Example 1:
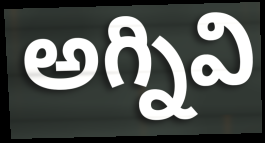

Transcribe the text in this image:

అగ్నివి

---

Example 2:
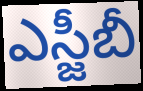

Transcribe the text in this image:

ఎస్జీబీ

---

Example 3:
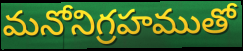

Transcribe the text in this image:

మనోనిగ్రహముతో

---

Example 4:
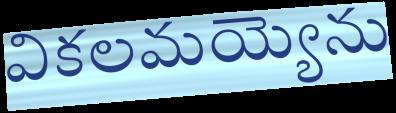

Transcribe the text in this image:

వికలమయ్యెను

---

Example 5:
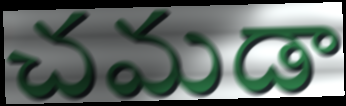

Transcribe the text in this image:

చమడా